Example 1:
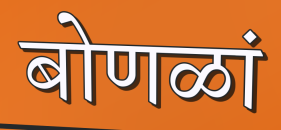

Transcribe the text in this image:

बोणळां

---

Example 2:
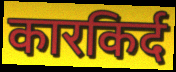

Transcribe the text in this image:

कारकिर्द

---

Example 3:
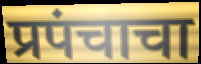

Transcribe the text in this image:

प्रपंचाचा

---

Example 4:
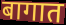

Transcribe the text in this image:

बागात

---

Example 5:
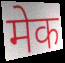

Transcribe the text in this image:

मेक